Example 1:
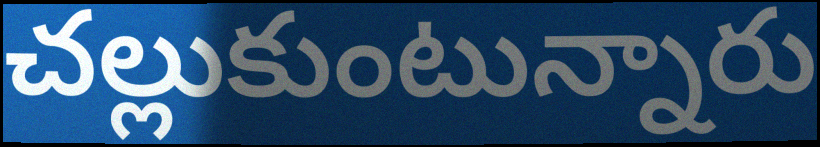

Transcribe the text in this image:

చల్లుకుంటున్నారు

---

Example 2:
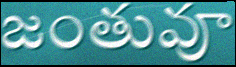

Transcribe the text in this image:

జంతువూ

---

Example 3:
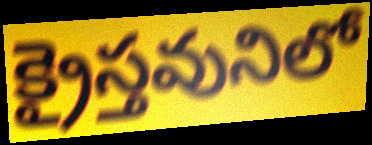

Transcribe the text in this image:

క్రైస్తవునిలో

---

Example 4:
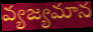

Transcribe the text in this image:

వ్యజ్యమాన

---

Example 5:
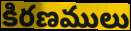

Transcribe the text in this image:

కిరణములు